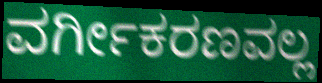
ವರ್ಗೀಕರಣವಲ್ಲ